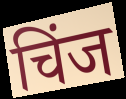
चिंज